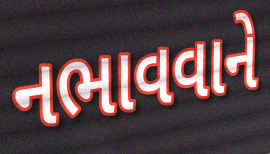
નભાવવાને